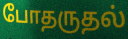
போதருதல்